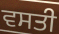
ਵਸਤੀ